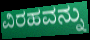
ವಿರಹವನ್ನು